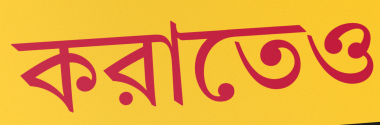
করাতেও